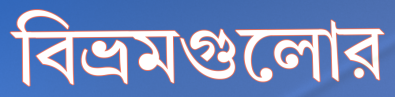
বিভ্রমগুলোর